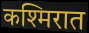
कश्मिरात